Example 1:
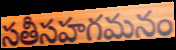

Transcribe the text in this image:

సతీసహగమనం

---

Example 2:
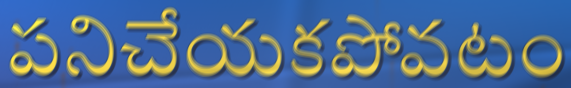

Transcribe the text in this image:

పనిచేయకపోవటం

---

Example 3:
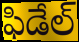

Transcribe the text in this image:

ఫిడేల్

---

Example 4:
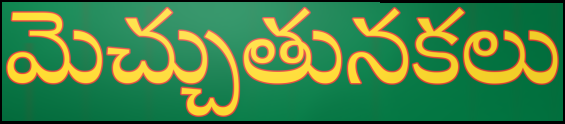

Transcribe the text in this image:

మెచ్చుతునకలు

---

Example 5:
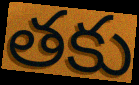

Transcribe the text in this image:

తకు